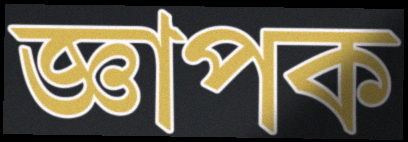
জ্ঞাপক